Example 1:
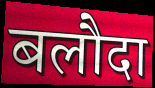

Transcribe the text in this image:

बलौदा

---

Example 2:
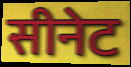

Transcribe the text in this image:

सीनेट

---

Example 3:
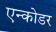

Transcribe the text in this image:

एन्कोडर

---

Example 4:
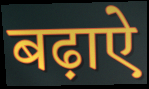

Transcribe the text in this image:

बढ़ाऐ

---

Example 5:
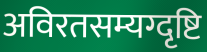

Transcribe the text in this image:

अविरतसम्यग्दृष्टि